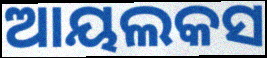
ଆୟଲକସ